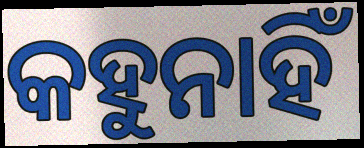
କହୁନାହିଁ